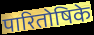
पारितोषिके